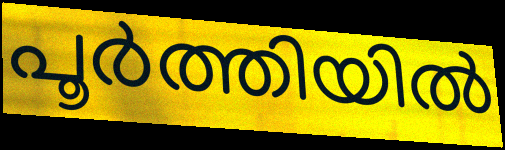
പൂർത്തിയിൽ